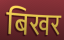
बिखर